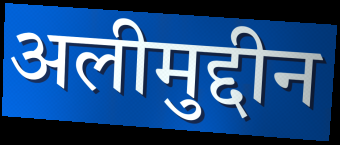
अलीमुद्दीन